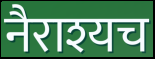
नैराश्यच